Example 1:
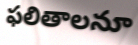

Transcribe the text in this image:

ఫలితాలనూ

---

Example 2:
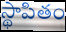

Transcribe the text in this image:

స్థాపితం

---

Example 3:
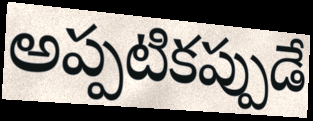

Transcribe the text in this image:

అప్పటికప్పుడే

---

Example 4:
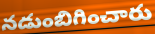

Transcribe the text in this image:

నడుంబిగించారు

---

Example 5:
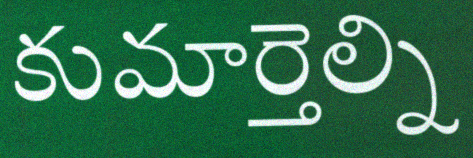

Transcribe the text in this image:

కుమార్తెల్ని